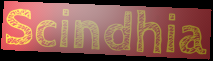
Scindhia